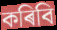
কৰিবি